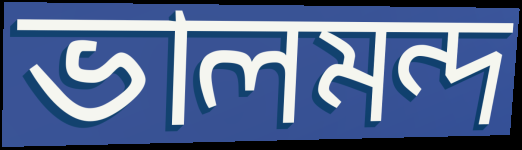
ভালমন্দ